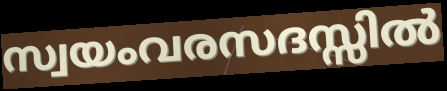
സ്വയംവരസദസ്സിൽ